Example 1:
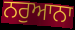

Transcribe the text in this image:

ਨਰੁਆਨਾ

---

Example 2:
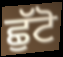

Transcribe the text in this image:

ਛੁੱਟੋ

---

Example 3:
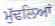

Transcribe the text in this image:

ਮੁੱਢਲਿਆਂ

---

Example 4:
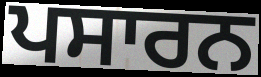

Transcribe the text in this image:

ਪਸਾਰਨ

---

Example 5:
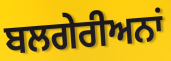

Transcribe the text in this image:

ਬਲਗੇਰੀਅਨਾਂ